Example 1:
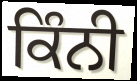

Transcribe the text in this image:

ਕਿੰਨੀ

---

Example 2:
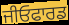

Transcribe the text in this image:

ਜੀਓਫਾਰਡ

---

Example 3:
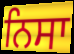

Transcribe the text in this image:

ਨਿਸਾ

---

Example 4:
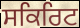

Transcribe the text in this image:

ਸਕਿਰਿਟ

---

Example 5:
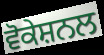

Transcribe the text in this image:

ਵੋਕੇਸ਼ਨਲ